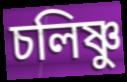
চলিষ্ণু